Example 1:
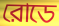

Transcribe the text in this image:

রোডে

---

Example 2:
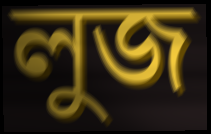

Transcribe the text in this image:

লুজ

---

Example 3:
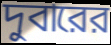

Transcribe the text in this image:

দুবারের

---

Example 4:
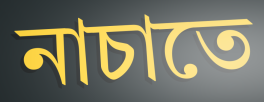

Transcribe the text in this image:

নাচাতে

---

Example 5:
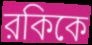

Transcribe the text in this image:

রকিকে